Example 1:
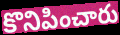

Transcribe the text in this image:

కొనిపించారు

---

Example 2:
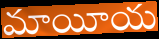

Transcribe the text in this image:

మాయీయ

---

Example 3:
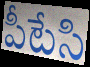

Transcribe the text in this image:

పీటేసి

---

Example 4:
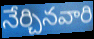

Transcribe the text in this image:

నేర్చినవారి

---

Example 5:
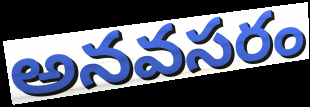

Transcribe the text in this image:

అనవసరం